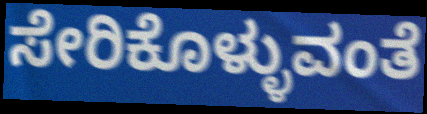
ಸೇರಿಕೊಳ್ಳುವಂತೆ